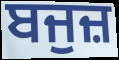
ਬਜੁਜ਼